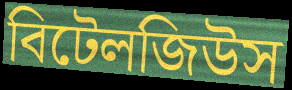
বিটেলজিউস